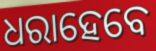
ଧରାହେବେ